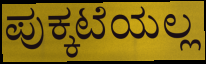
ಪುಕ್ಕಟೆಯಲ್ಲ